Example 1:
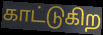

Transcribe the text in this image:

காட்டுகிற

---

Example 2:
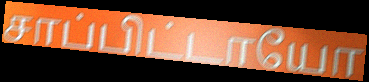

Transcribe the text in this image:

சாப்பிட்டாயோ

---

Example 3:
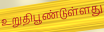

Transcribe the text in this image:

உறுதிபூண்டுள்ளது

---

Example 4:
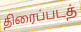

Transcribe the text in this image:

திரைப்படத்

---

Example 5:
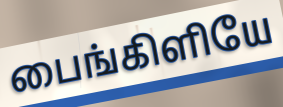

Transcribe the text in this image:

பைங்கிளியே